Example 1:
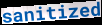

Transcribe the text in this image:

sanitized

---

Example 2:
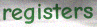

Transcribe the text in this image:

registers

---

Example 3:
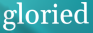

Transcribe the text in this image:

gloried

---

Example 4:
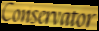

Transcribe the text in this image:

Conservator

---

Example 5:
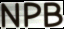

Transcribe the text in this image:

NPB